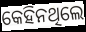
କେହିନଥିଲେ